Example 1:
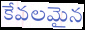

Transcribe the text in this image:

కేవలమైన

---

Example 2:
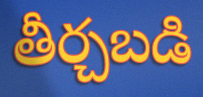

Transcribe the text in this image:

తీర్చబడి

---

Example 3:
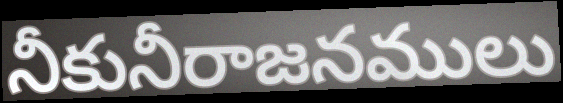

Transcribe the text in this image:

నీకునీరాజనములు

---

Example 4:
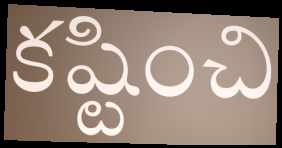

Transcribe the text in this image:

కష్టించి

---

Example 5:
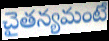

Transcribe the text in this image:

చైతన్యమంటే